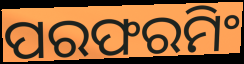
ପରଫରମିଂ